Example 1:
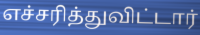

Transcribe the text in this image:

எச்சரித்துவிட்டார்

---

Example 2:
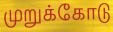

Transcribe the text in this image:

முறுக்கோடு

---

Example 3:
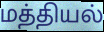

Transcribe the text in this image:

மத்தியல்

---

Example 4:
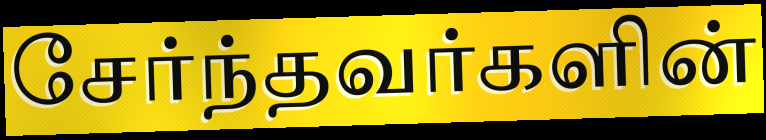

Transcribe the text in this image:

சேர்ந்தவர்களின்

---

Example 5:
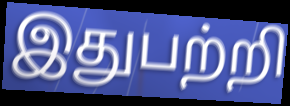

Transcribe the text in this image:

இதுபற்றி